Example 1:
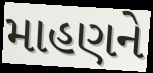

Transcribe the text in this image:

માહણને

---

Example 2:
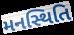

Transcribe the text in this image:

મનસ્થિતિ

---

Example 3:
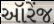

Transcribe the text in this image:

ઑરેંજ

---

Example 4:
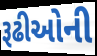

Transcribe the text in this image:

રૂઢીઓની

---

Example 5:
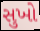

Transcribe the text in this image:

સુખો